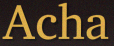
Acha